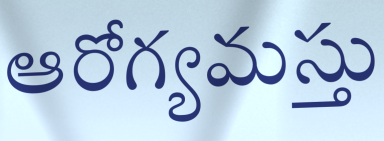
ఆరోగ్యమస్తు